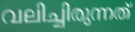
വലിച്ചിരുന്നത്